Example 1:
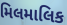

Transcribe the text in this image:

મિલમાલિક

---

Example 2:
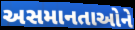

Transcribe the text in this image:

અસમાનતાઓને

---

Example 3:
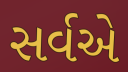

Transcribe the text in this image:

સર્વએ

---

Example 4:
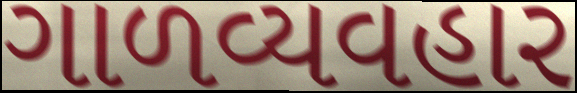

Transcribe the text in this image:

ગાળવ્યવહાર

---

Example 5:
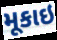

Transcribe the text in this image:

મૂકાઇ